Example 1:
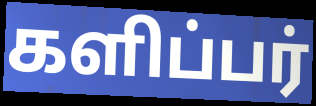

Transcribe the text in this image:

களிப்பர்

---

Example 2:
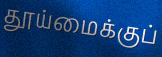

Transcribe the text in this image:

தூய்மைக்குப்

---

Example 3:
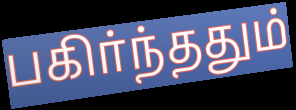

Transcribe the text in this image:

பகிர்ந்ததும்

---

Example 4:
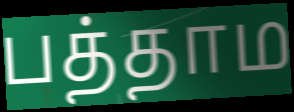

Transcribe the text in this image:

பத்தாம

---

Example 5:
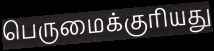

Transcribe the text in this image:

பெருமைக்குரியது